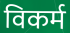
विकर्म